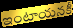
ఇంటాయనకీ